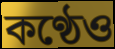
কণ্ঠেও